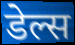
डेल्स